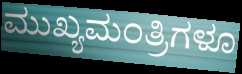
ಮುಖ್ಯಮಂತ್ರಿಗಳೂ